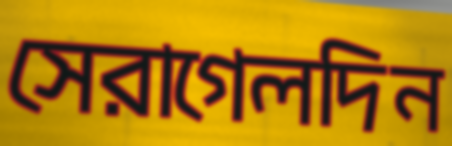
সেরাগেলদিন